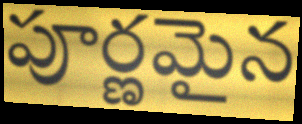
పూర్ణమైన